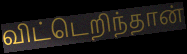
விட்டெறிந்தான்